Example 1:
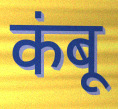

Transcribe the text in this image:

कंबू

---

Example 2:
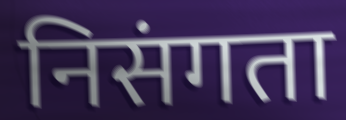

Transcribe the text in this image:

निसंगता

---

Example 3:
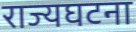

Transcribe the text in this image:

राज्यघटना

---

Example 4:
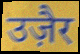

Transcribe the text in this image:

उज़ैर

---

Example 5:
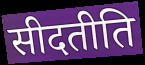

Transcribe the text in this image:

सीदतीति